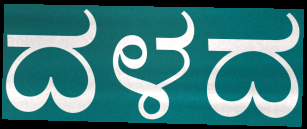
ದಳದ